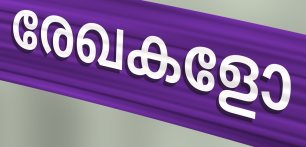
രേഖകളോ